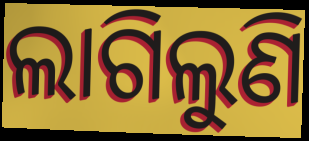
ଲାଗିଲୁଣି